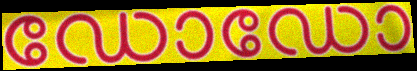
ഡോഡോ